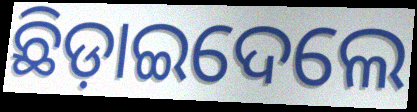
ଛିଡ଼ାଇଦେଲେ